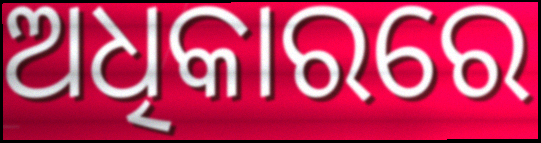
ଅଧିକାରରେ